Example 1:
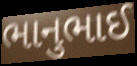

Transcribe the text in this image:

ભાનુભાઈ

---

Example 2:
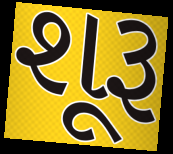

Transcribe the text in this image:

શૂરૂ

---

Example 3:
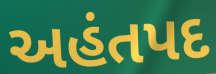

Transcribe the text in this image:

અહંતપદ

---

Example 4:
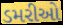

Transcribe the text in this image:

ડમરીઓ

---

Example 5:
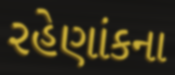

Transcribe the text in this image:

રહેણાંકના